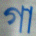
গা